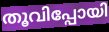
തൂവിപ്പോയി